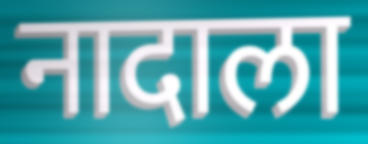
नादाला